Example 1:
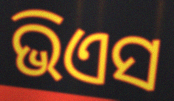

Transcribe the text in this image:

ଭିଏସ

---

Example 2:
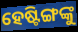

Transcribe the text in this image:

ହେଷ୍ଟିଙ୍ଗଙ୍କୁ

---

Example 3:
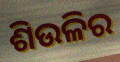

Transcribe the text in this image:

ଶିଉଳିର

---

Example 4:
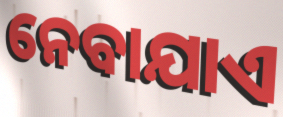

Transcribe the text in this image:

ନେବାଯାଏ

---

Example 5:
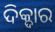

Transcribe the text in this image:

ଦିକ୍ଦାର